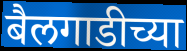
बैलगाडीच्या